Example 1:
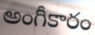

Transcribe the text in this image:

అంగీకారం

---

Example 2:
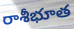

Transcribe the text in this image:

రాశీభూత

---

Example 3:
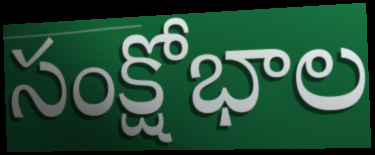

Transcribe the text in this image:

సంక్షోభాల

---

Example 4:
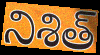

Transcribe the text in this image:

నిశిత్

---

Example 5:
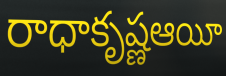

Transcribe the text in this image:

రాధాకృష్ణఆయీ